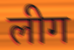
लीग